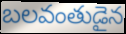
బలవంతుడైన